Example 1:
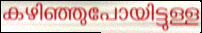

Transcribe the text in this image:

കഴിഞ്ഞുപോയിട്ടുള്ള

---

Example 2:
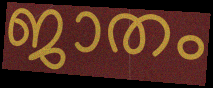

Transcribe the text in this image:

ജാതം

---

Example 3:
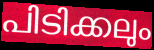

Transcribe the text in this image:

പിടിക്കലും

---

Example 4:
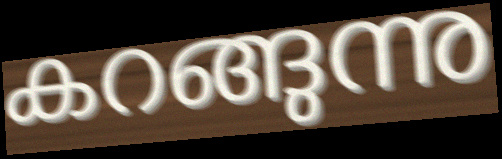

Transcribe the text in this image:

കറങ്ങുന്നു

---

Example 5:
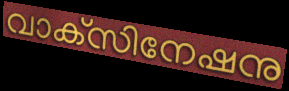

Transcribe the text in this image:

വാക്‌സിനേഷനു